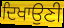
ਦਿਖਾਉਣੀ